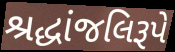
શ્રદ્ધાંજલિરૂપે